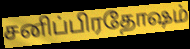
சனிப்பிரதோஷம்